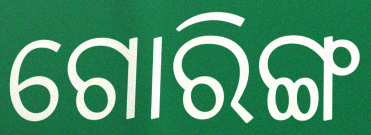
ଗୋରିଙ୍ଗ